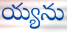
య్యను